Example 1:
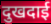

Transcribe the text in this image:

दुखदाई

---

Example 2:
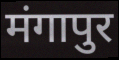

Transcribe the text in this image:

मंगापुर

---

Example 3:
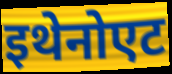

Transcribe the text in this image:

इथेनोएट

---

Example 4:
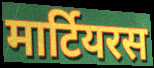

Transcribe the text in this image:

मार्टियरस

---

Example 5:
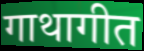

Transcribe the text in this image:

गाथागीत